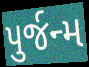
પુર્જન્મ